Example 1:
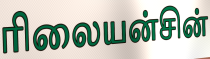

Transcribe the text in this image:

ரிலையன்சின்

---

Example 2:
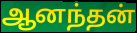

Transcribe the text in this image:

ஆனந்தன்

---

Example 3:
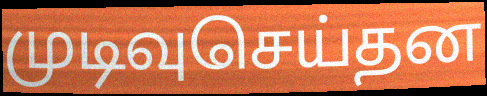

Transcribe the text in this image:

முடிவுசெய்தன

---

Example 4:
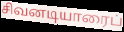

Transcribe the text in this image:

சிவனடியாரைப்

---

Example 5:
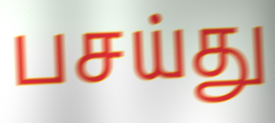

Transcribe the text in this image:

பசய்து